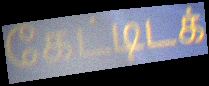
கேட்டிடக்